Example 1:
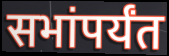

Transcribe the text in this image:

सभांपर्यंत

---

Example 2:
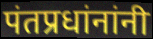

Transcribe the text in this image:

पंतप्रधांनांनी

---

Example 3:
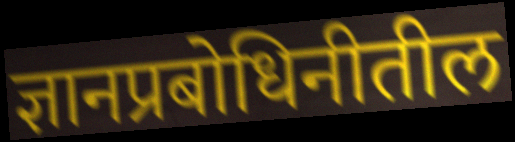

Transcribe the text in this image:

ज्ञानप्रबोधिनीतील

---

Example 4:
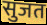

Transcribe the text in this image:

सुजत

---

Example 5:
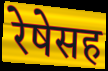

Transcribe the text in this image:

रेषेसह